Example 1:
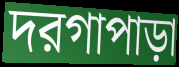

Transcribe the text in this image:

দরগাপাড়া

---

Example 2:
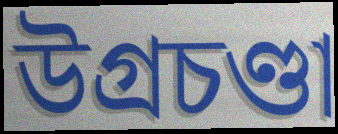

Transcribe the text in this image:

উগ্রচণ্ডা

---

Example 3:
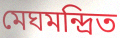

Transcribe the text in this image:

মেঘমন্দ্রিত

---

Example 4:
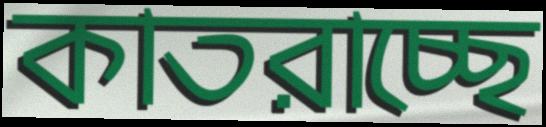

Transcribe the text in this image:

কাতরাচ্ছে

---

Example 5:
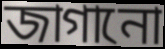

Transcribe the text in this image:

জাগানো